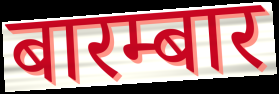
बारम्बार